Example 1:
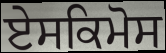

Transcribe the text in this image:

ਏਸਕਿਮੋਸ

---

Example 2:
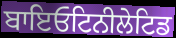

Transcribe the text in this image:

ਬਾਇਓਟਿਨੀਲੇਟਿਡ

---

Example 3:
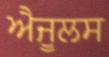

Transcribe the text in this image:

ਐਜੂਲਸ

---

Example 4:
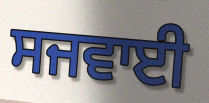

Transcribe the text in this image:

ਸਜਵਾਈ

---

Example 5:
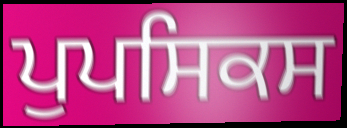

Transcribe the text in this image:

ਪੁਪਸਿਕਸ